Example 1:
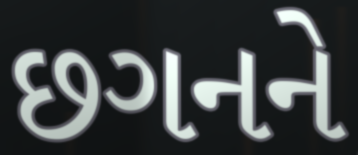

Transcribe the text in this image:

છગનને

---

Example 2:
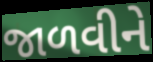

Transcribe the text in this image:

જાળવીને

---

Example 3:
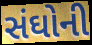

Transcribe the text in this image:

સંઘોની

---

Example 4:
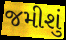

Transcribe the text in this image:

જમીશું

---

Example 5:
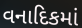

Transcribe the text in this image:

વનાદિકમાં